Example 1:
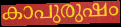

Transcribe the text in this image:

കാപുരുഷം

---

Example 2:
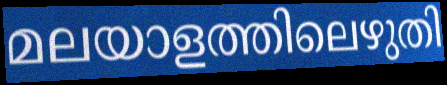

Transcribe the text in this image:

മലയാളത്തിലെഴുതി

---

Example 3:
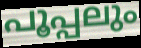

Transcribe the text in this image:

പൂപ്പലും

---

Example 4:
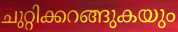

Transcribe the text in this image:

ചുറ്റിക്കറങ്ങുകയും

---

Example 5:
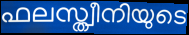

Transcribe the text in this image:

ഫലസ്ത്വീനിയുടെ